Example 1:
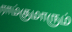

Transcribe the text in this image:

ராம்குமாரும்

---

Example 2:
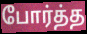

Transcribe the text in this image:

போர்த்த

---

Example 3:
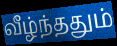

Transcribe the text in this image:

வீழ்ந்ததும்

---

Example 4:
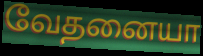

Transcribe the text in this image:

வேதனையா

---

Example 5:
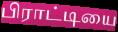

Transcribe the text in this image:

பிராட்டியை